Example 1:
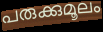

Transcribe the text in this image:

പരുക്കുമൂലം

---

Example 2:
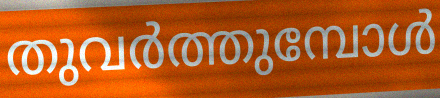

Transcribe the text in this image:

തുവർത്തുമ്പോൾ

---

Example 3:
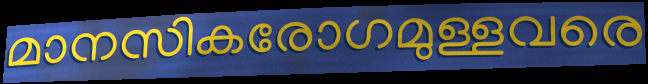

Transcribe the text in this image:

മാനസികരോഗമുള്ളവരെ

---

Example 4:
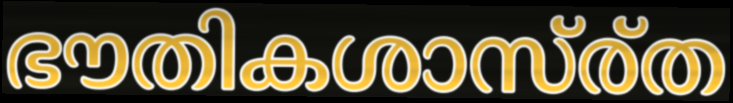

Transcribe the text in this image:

ഭൗതികശാസ്ര്ത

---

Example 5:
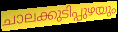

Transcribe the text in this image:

ചാലക്കുടിപ്പുഴയും